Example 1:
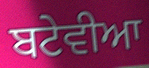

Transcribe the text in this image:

ਬਟੇਵੀਆ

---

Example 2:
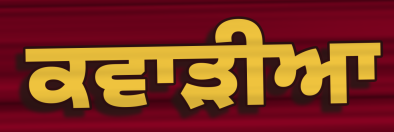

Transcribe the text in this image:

ਕਵਾੜੀਆ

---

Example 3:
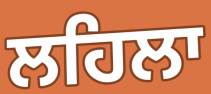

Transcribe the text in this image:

ਲਹਿਲਾ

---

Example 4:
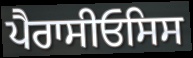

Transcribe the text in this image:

ਪੈਰਾਸੀਓਸਿਸ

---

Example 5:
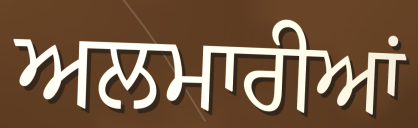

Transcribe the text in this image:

ਅਲਮਾਰੀਆਂ